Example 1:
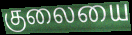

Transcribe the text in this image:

குலையை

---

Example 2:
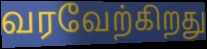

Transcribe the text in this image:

வரவேற்கிறது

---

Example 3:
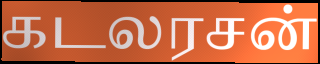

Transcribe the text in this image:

கடலரசன்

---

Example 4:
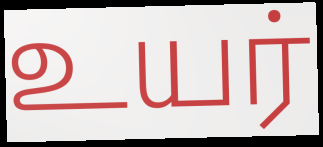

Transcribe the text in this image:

உயர்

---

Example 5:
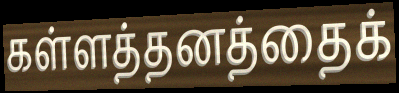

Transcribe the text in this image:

கள்ளத்தனத்தைக்